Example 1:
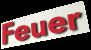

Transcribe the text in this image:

Feuer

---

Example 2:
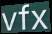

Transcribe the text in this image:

vfx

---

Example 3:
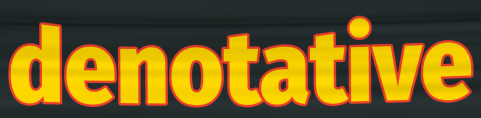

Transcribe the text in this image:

denotative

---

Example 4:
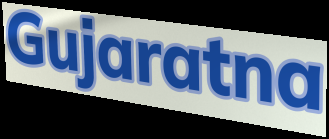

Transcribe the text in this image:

Gujaratna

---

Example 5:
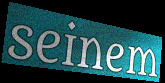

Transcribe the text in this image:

seinem